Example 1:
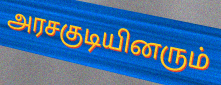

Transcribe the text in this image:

அரசகுடியினரும்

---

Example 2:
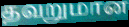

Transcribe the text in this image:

தவறுமான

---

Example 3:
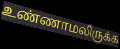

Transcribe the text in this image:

உண்ணாமலிருக்க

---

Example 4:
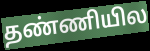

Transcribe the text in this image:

தண்ணியில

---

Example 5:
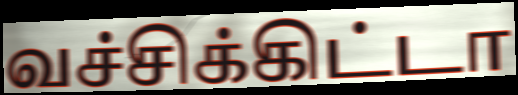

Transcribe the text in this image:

வச்சிக்கிட்டா